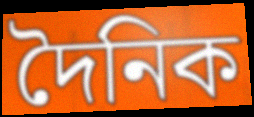
দৈনিক